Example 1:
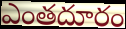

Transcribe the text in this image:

ఎంతదూరం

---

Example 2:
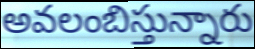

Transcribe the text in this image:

అవలంబిస్తున్నారు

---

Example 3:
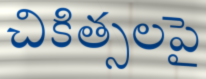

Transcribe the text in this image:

చికిత్సలపై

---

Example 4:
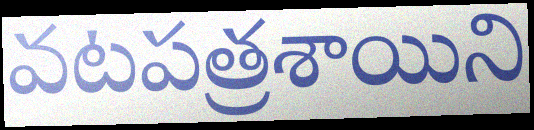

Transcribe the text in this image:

వటపత్రశాయిని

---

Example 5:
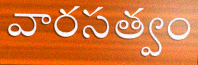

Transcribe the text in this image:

వారసత్వం